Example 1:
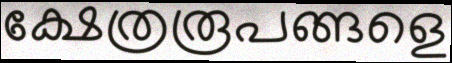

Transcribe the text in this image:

ക്ഷേത്രരൂപങ്ങളെ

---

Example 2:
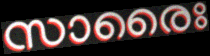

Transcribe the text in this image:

സാരൈഃ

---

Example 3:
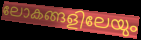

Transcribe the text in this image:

ലോകങ്ങളിലേയും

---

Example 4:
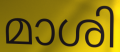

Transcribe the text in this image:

മാശി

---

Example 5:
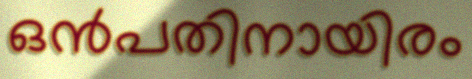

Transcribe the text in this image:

ഒൻപതിനായിരം